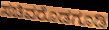
ಸಚಿವರೊಡಗೂಡಿ